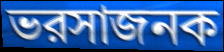
ভরসাজনক